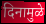
दिनामुळे